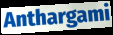
Anthargami